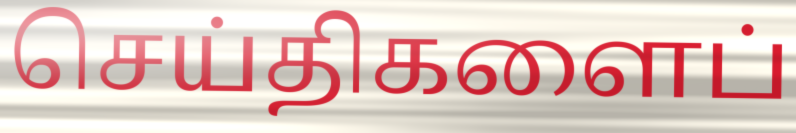
செய்திகளைப்